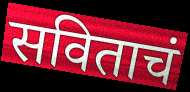
सविताचं